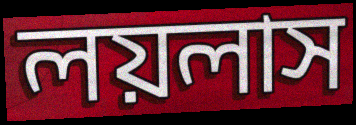
লয়লাস